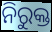
ନିରୁକ୍ତ